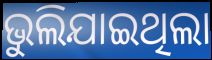
ଭୁଲିଯାଇଥିଲା